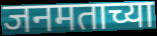
जनमताच्या